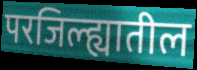
परजिल्ह्यातील